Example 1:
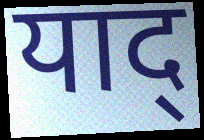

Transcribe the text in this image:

याद्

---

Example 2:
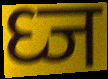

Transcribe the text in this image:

ध्ज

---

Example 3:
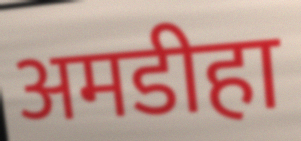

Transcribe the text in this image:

अमडीहा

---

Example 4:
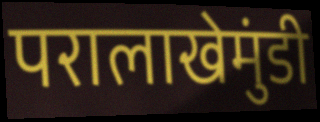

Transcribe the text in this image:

परालाखेमुंडी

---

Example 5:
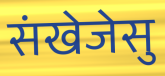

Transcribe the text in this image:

संखेजेसु